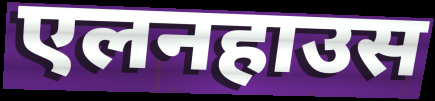
एलनहाउस